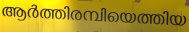
ആർത്തിരമ്പിയെത്തിയ